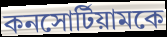
কনসোর্টিয়ামকে